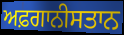
ਅਫ਼ਗਾਨੀਸਤਾਨ